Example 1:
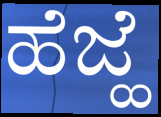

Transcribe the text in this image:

ಹೆಜ್ಹೆ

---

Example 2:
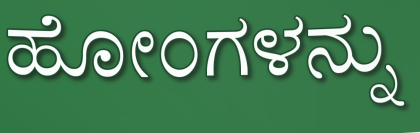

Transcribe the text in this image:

ಹೋಂಗಳನ್ನು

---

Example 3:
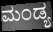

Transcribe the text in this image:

ಮಂಡ್ಯ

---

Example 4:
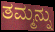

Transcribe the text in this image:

ತಮ್ಮನ್ನು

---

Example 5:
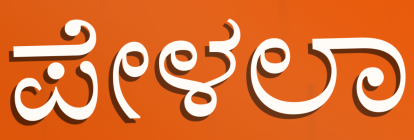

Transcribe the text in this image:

ಪೇಳಲಾ